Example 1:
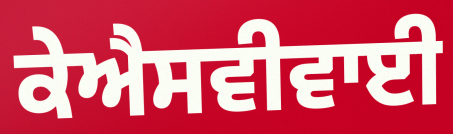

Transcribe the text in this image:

ਕੇਐਸਵੀਵਾਈ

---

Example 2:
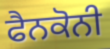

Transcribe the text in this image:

ਫੈਨਕੋਨੀ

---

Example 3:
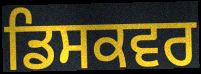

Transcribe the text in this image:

ਡਿਸਕਵਰ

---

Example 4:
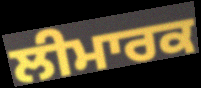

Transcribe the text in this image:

ਲੀਮਾਰਕ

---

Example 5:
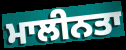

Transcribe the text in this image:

ਮਾਲੀਨਤਾ